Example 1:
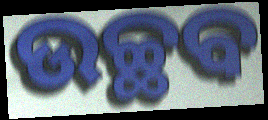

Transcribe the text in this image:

ଉଚ୍ଛବ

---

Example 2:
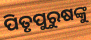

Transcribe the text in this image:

ପିତୃପୁରୁଷଙ୍କୁ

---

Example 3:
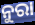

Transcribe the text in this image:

ନୁରା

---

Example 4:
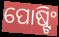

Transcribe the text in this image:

ପୋଷ୍ଟିଂ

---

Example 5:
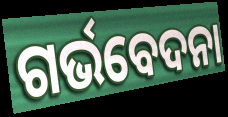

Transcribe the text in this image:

ଗର୍ଭବେଦନା